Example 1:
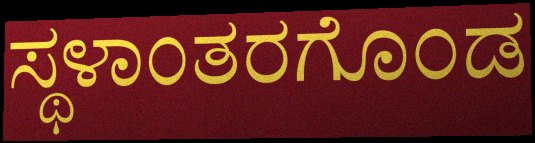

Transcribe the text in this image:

ಸ್ಥಳಾಂತರಗೊಂಡ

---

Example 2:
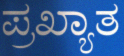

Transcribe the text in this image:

ಪ್ರಖ್ಯಾತ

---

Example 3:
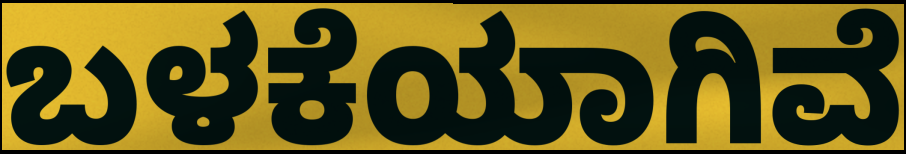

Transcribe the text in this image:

ಬಳಕೆಯಾಗಿವೆ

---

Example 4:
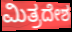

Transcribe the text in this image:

ಮಿತ್ರದೇಶ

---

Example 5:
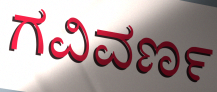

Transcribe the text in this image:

ಗವಿವರ್ಣ